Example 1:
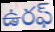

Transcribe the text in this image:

ఉరఫ్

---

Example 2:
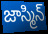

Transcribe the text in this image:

జాస్మిన్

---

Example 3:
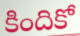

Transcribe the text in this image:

కిందికో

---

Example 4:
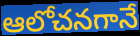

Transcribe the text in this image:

ఆలోచనగానే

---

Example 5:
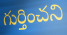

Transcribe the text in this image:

గుర్తించని